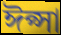
ঈপ্সা